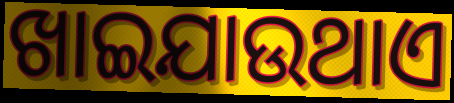
ଖାଇଯାଉଥାଏ